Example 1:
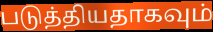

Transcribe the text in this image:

படுத்தியதாகவும்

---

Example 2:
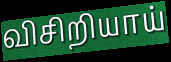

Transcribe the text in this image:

விசிறியாய்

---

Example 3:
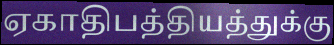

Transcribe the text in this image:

ஏகாதிபத்தியத்துக்கு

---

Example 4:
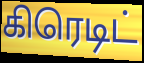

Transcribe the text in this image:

கிரெடிட்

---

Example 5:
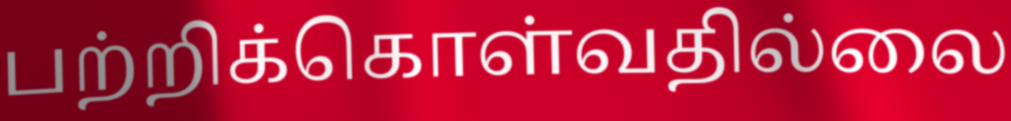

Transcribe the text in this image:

பற்றிக்கொள்வதில்லை